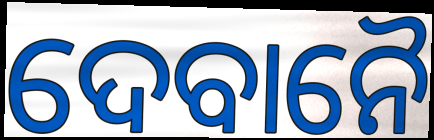
ଦେବାନୈ